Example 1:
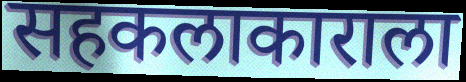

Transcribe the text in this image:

सहकलाकाराला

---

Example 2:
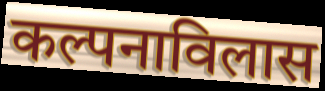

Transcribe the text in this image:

कल्पनाविलास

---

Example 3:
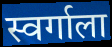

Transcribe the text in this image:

स्वर्गाला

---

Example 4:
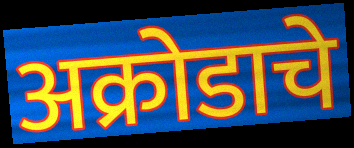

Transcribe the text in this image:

अक्रोडाचे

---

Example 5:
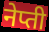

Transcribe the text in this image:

नेप्ती